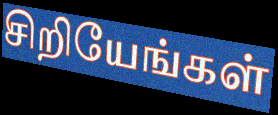
சிறியேங்கள்